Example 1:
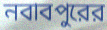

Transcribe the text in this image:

নবাবপুরের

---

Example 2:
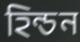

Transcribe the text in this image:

হিন্ডন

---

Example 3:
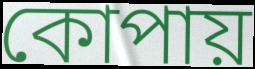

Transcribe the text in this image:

কোপায়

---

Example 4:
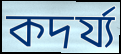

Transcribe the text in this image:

কদর্য্য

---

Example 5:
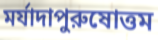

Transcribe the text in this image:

মর্যাদাপুরুষোত্তম